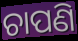
ଚାପଣି